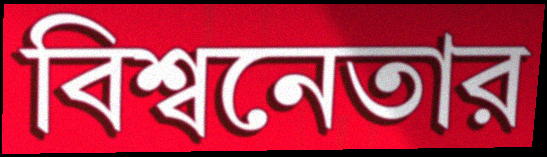
বিশ্বনেতার